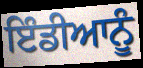
ਇੰਡੀਆਨੂੰ